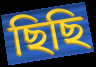
ছিছি